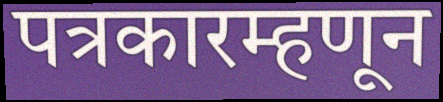
पत्रकारम्हणून